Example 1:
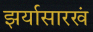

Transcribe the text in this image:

झर्यासारखं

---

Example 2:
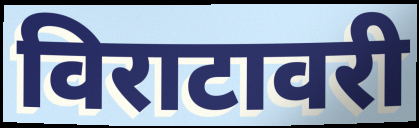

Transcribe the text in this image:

विराटावरी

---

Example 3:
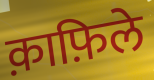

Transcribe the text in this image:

क़ाफ़िले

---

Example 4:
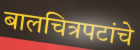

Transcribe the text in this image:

बालचित्रपटांचे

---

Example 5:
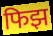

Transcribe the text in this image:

फिझ